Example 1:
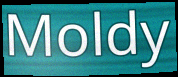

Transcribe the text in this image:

Moldy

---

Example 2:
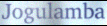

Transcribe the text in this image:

Jogulamba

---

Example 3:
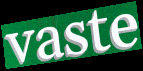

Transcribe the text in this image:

vaste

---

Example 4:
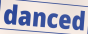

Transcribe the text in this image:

danced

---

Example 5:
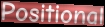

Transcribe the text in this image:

Positional